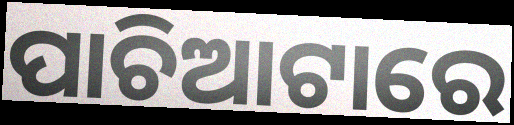
ପାଚିଆଟାରେ